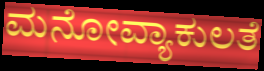
ಮನೋವ್ಯಾಕುಲತೆ